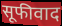
सूफीवाद